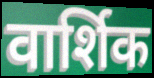
वार्शिक